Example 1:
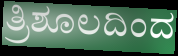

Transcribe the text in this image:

ತ್ರಿಶೂಲದಿಂದ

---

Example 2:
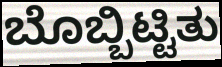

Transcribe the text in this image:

ಬೊಬ್ಬಿಟ್ಟಿತು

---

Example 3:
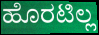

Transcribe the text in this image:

ಹೊರಟಿಲ್ಲ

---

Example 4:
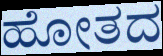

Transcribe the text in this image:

ಹೋತದ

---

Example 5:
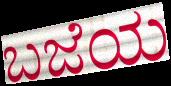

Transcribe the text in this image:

ಬಜೆಯ